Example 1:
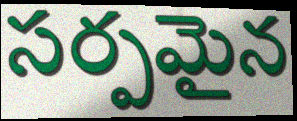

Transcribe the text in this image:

సర్పమైన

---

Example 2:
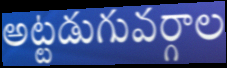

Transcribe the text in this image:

అట్టడుగువర్గాల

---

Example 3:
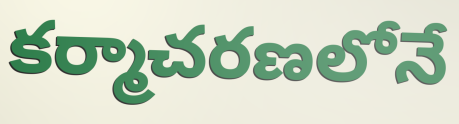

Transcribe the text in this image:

కర్మాచరణలోనే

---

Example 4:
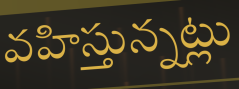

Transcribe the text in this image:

వహిస్తున్నట్లు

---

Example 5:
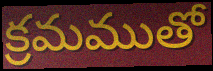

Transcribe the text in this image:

క్రమముతో